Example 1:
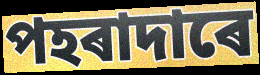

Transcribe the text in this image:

পহৰাদাৰে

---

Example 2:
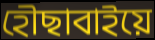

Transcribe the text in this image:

হৌছাবাইয়ে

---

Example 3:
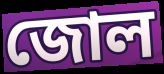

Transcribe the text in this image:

জোল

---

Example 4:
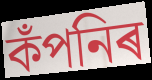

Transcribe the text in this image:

কঁপনিৰ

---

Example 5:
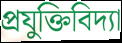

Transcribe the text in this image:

প্ৰযুক্তিবিদ্যা